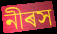
নীৰস